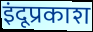
इंदूप्रकाश